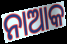
ନାଆକ